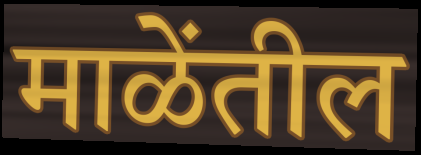
माळेंतील